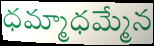
ధమ్మాధమ్మేన